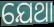
ଯେଥା